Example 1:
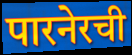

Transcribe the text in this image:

पारनेरची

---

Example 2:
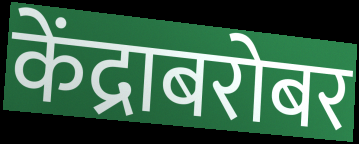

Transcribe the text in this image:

केंद्राबरोबर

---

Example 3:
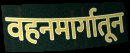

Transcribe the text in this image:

वहनमार्गातून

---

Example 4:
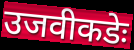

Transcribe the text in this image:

उजवीकडेः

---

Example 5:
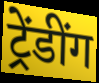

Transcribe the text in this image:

ट्रेंडींग